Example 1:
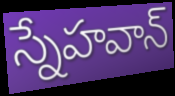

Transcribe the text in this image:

స్నేహవాన్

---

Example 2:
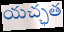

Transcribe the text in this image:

యచ్ఛత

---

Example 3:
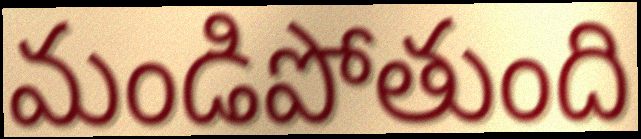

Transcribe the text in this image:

మండిపోతుంది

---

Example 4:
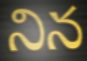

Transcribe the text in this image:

నిన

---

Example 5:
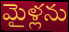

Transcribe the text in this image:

మైళ్లను